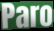
Paro